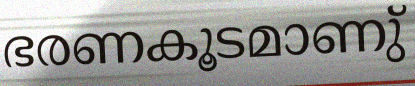
ഭരണകൂടമാണു്